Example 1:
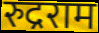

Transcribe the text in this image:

रुद्रराम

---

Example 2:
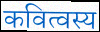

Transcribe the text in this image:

कवित्वस्य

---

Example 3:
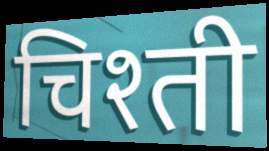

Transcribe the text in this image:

चिश्ती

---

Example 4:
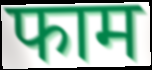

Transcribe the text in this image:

फाम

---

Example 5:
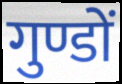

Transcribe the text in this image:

गुण्डों